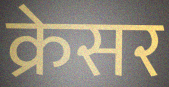
क्रेसर